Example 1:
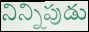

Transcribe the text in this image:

నిన్నిపుడు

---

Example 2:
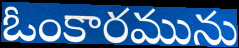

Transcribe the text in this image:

ఓంకారమును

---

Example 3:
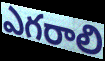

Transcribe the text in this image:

ఎగరాలి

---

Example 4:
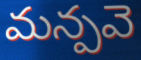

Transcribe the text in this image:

మన్పవె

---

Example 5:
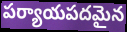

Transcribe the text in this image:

పర్యాయపదమైన